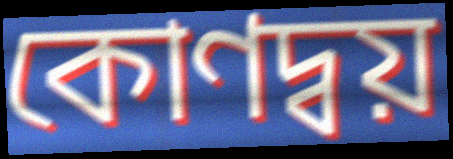
কোণদ্বয়